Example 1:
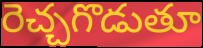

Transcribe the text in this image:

రెచ్చగొడుతూ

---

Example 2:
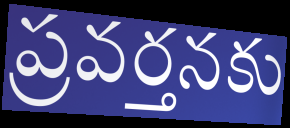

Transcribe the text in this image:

ప్రవర్తనకు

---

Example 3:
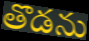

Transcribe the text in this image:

తొడను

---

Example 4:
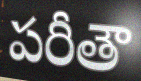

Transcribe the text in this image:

పరీతౌ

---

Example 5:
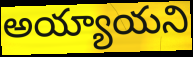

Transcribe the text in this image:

అయ్యాయని